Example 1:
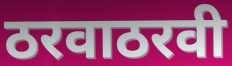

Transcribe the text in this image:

ठरवाठरवी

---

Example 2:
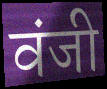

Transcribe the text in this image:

वंजी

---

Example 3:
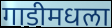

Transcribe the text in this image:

गाडीमधला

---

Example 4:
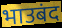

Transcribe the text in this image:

भाउबंद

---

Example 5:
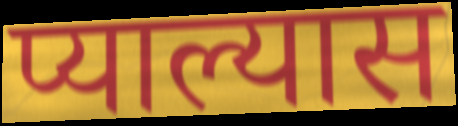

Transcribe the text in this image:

प्याल्यास